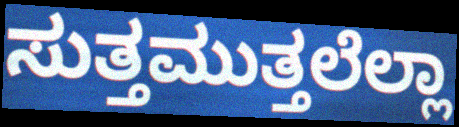
ಸುತ್ತಮುತ್ತಲೆಲ್ಲಾ